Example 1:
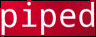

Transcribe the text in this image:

piped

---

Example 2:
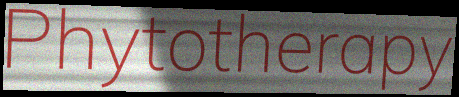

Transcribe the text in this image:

Phytotherapy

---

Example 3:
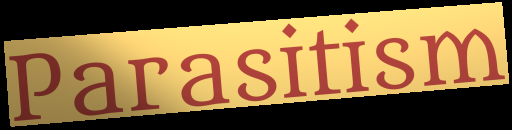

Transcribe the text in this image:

Parasitism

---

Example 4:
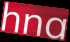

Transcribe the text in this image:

hna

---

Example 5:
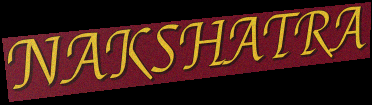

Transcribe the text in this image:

NAKSHATRA